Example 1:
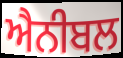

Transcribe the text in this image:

ਐਨੀਬਲ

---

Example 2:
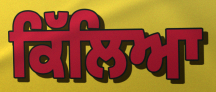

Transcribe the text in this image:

ਕਿੱਲਿਆ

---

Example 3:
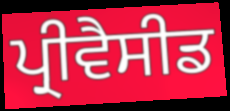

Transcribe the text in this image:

ਪ੍ਰੀਵੈਸੀਡ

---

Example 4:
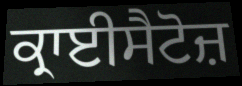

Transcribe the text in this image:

ਕ੍ਰਾਈਸੈਟੋਜ਼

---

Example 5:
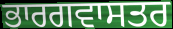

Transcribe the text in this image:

ਭਾਰਗਵਾਸਤਰ